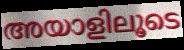
അയാളിലൂടെ